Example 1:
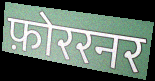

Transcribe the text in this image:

फ़ोररनर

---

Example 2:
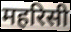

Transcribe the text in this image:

महरिसी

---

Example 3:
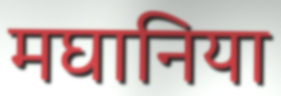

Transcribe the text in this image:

मघानिया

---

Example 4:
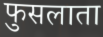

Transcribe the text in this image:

फुसलाता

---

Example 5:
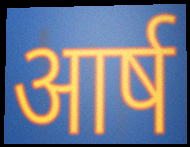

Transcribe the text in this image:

आर्ष